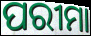
ପରୀମା